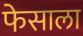
फेसाला